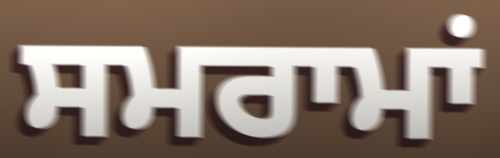
ਸਮਰਾਮਾਂ